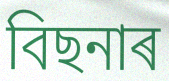
বিছনাৰ